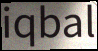
iqbal